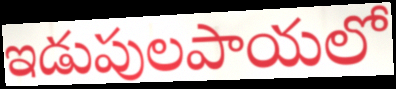
ఇడుపులపాయలో